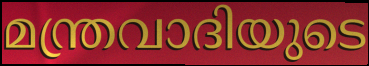
മന്ത്രവാദിയുടെ